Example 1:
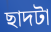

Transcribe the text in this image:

ছাদটা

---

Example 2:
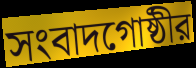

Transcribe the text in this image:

সংবাদগোষ্ঠীর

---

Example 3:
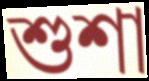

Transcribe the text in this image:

শুশা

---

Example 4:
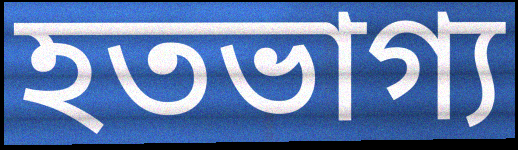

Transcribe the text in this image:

হতভাগ্য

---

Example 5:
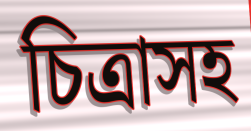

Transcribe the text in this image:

চিত্রাসহ